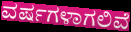
ವರ್ಷಗಳಾಗಲಿವೆ